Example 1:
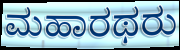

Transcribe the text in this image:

ಮಹಾರಥರು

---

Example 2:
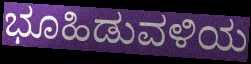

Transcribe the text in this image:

ಭೂಹಿಡುವಳಿಯ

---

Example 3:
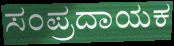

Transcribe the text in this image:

ಸಂಪ್ರದಾಯಕ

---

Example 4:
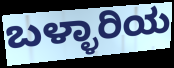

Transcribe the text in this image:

ಬಳ್ಳಾರಿಯ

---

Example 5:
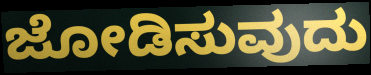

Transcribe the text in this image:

ಜೋಡಿಸುವುದು